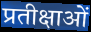
प्रतीक्षाओं